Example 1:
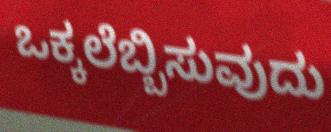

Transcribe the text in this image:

ಒಕ್ಕಲೆಬ್ಬಿಸುವುದು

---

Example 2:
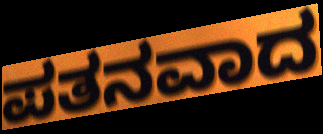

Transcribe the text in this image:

ಪತನವಾದ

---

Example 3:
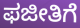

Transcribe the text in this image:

ಫಜೀತಿಗೆ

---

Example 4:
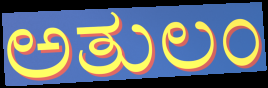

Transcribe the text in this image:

ಅತುಲಂ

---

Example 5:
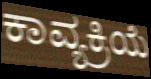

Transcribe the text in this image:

ಕಾವ್ಯಕ್ರಿಯೆ